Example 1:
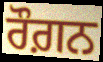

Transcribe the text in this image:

ਰੌਗ਼ਨ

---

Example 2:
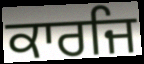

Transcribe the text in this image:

ਕਾਰਜਿ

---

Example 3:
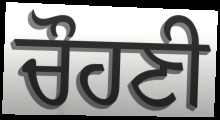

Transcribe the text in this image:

ਚੌਹਣੀ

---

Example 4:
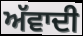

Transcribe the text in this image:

ਅੱਵਾਦੀ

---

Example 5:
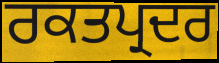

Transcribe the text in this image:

ਰਕਤਪ੍ਰਦਰ